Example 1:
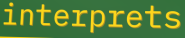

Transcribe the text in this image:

interprets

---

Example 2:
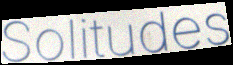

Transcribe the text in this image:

Solitudes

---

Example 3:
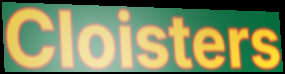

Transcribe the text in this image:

Cloisters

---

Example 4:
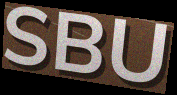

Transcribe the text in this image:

SBU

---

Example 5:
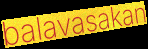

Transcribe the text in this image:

balavasakan